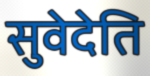
सुवेदेति